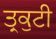
ਤ੍ਰਕੁਟੀ